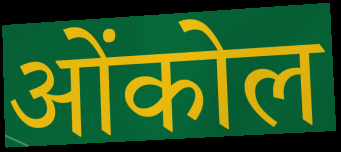
ओंकोल